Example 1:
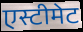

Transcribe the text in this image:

एस्‍टीमेट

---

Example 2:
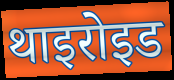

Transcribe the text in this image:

थाइरोइड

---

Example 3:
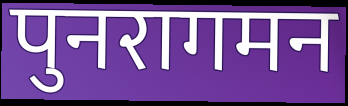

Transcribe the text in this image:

पुनरागमन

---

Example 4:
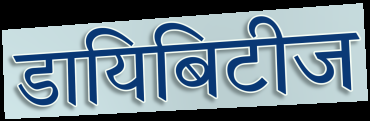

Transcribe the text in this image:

डायिबिटीज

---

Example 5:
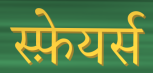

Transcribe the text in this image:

स्फ़ेयर्स